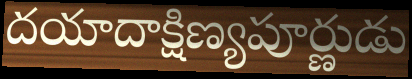
దయాదాక్షిణ్యపూర్ణుడు